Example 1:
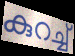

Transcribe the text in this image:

കുറച്ച്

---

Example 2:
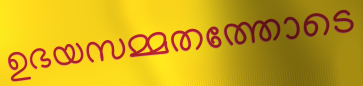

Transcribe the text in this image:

ഉഭയസമ്മതത്തോടെ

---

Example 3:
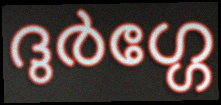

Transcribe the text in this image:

ദുർഗ്ഗേ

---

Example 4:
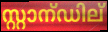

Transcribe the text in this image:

സ്റ്റാന്ഡില്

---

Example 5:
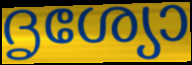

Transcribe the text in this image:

ദൃശ്യോ